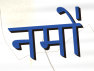
नमो॑